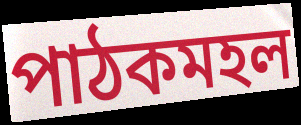
পাঠকমহল